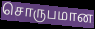
சொருபமான